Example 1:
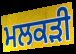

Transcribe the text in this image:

ਮਲਕੜੀ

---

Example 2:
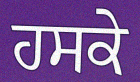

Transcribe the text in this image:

ਹਸਕੇ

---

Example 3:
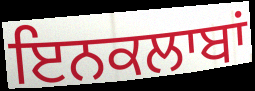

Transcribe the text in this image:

ਇਨਕਲਾਬਾਂ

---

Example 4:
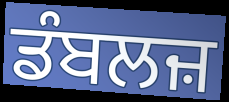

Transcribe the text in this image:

ਡੰਬਲਜ਼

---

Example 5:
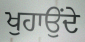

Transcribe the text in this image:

ਖੁਹਾਉਂਦੇ